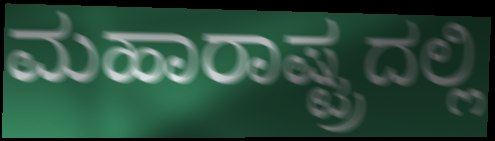
ಮಹಾರಾಷ್ಟ್ರದಲ್ಲಿ